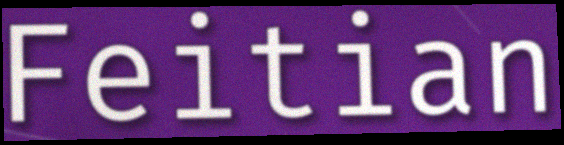
Feitian